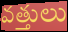
వత్తులు